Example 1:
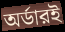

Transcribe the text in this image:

অর্ডারই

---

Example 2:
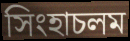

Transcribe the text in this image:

সিংহাচলম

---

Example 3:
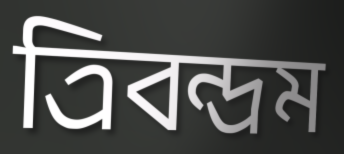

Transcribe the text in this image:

ত্রিবন্দ্রম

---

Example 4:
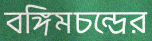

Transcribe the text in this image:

বঙ্গিমচন্দ্রের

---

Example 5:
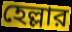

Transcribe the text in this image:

হেল্লার